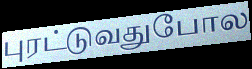
புரட்டுவதுபோல